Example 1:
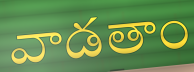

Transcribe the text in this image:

వాడతాం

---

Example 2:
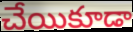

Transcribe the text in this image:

చేయికూడా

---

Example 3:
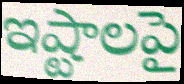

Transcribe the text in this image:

ఇష్టాలపై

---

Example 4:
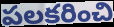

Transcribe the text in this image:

పలకరించి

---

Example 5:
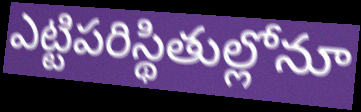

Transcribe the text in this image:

ఎట్టిపరిస్థితుల్లోనూ